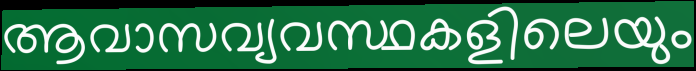
ആവാസവ്യവസ്ഥകളിലെയും